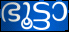
ഭൂട്ടാ